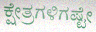
ಕ್ಷೇತ್ರಗಳಿಗಷ್ಟೇ